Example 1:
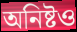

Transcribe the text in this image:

অনিষ্টও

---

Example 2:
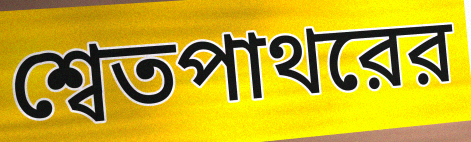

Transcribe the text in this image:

শ্বেতপাথরের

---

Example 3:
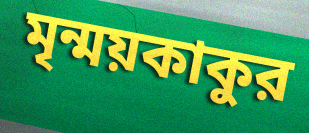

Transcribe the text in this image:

মৃন্ময়কাকুর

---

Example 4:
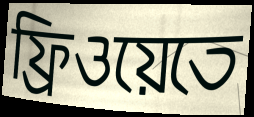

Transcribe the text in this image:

ফ্রিওয়েতে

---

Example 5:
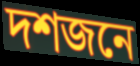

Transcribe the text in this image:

দশজনে